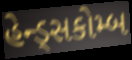
હેન્ડ્સકોમ્બ